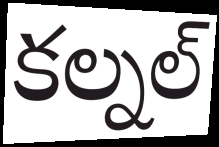
కల్నల్